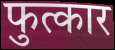
फुत्कार